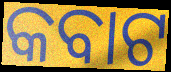
କବାଟ